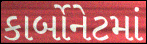
કાર્બોનેટમાં